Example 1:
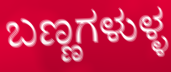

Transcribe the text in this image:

ಬಣ್ಣಗಳುಳ್ಳ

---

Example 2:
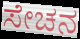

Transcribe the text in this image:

ಸೇಚನ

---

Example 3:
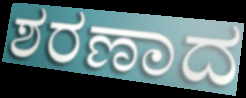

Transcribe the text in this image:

ಶರಣಾದ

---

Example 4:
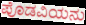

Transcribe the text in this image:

ಪೊಡವಿಯನು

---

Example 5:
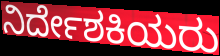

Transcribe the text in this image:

ನಿರ್ದೇಶಕಿಯರು